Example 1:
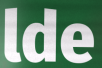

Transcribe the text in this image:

lde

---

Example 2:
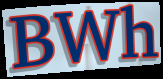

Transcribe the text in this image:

BWh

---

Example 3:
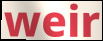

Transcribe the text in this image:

weir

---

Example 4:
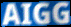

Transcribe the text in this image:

AIGG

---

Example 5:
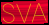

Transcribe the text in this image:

SVA